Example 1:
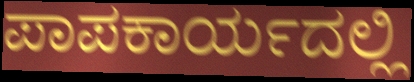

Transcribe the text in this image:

ಪಾಪಕಾರ್ಯದಲ್ಲಿ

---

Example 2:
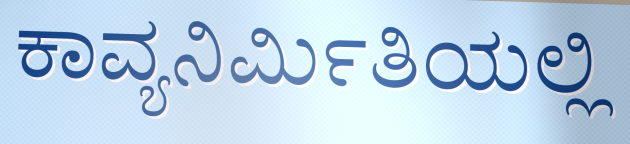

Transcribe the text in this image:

ಕಾವ್ಯನಿರ್ಮಿತಿಯಲ್ಲಿ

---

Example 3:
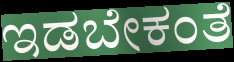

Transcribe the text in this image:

ಇಡಬೇಕಂತೆ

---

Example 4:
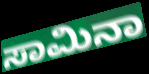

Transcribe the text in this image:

ಸಾಮಿನಾ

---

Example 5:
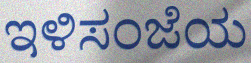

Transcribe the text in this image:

ಇಳಿಸಂಜೆಯ